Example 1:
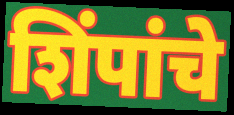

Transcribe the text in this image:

शिंपांचे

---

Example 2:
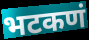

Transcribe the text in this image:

भटकणं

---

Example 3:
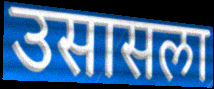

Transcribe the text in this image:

उसासला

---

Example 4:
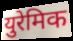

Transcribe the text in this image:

युरेमिक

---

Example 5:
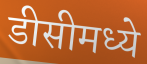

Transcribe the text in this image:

डीसीमध्ये